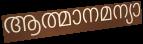
ആത്മാനമന്യാ